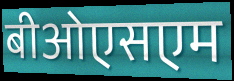
बीओएसएम